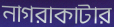
নাগরাকাটার